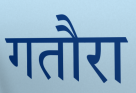
गतौरा